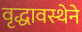
वृद्धावस्थेने